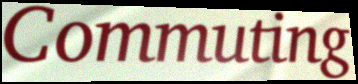
Commuting